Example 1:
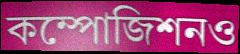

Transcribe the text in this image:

কম্পোজিশনও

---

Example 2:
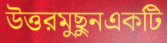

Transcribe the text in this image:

উত্তরমুছুনএকটি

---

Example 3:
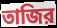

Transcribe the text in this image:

তাজির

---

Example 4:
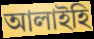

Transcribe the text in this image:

আলাইহি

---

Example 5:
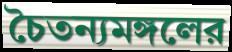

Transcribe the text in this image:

চৈতন্যমঙ্গলের